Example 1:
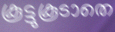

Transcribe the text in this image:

കൂട്ടുകൂടാതെ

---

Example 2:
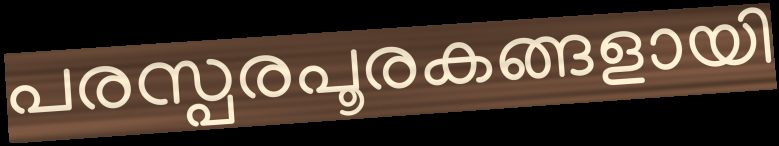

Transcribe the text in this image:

പരസ്പരപൂരകങ്ങളായി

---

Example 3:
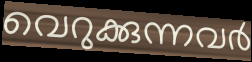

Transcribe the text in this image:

വെറുക്കുന്നവർ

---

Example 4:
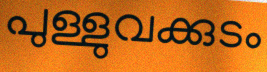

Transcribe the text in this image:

പുള്ളുവക്കുടം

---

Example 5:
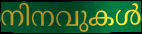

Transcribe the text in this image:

നിനവുകൾ